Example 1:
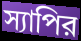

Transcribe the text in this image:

স্যাপির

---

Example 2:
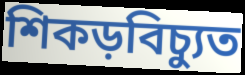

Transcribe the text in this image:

শিকড়বিচ্যুত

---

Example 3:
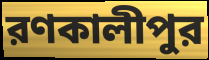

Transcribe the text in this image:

রণকালীপুর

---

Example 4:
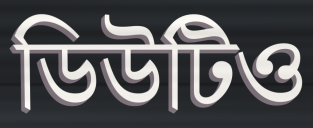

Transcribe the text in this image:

ডিউটিও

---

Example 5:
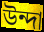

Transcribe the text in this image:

উন্দা